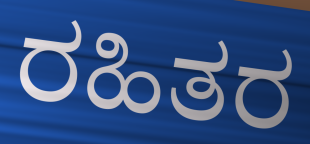
ರಹಿತರ